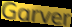
Garver